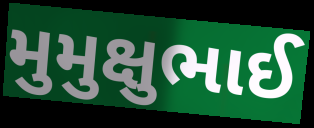
મુમુક્ષુભાઈ